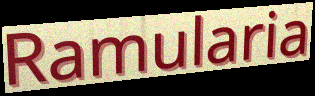
Ramularia